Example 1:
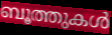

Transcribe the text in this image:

ബൂത്തുകൾ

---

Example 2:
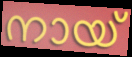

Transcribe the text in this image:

നായ്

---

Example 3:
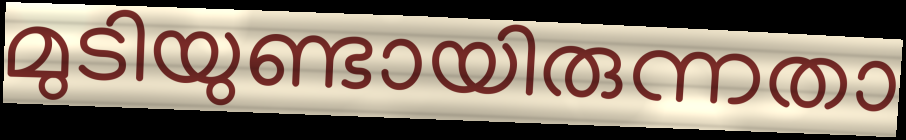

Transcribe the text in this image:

മുടിയുണ്ടായിരുന്നതാ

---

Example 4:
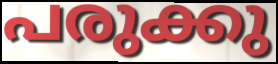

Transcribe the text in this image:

പരുക്കു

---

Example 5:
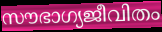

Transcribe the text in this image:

സൗഭാഗ്യജീവിതം